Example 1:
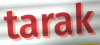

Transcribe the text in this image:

tarak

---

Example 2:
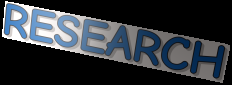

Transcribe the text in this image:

RESEARCH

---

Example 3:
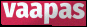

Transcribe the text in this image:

vaapas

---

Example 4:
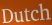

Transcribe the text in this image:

Dutch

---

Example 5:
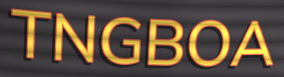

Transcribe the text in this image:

TNGBOA